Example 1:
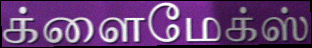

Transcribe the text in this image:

க்ளைமேக்ஸ்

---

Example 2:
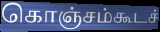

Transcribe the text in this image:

கொஞ்சம்கூடச்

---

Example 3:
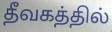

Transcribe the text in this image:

தீவகத்தில்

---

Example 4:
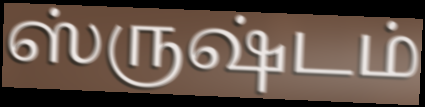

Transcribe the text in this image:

ஸ்ருஷ்டம்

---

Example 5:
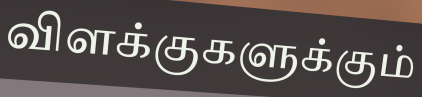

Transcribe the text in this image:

விளக்குகளுக்கும்